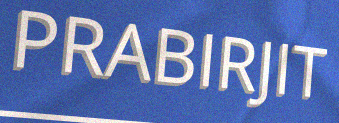
PRABIRJIT